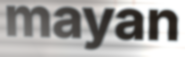
mayan